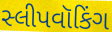
સ્લીપવૉકિંગ